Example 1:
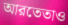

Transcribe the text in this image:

আরতেতাও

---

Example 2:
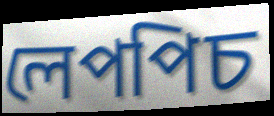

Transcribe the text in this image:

লেপপিচ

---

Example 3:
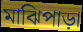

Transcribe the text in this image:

মাঝিপাড়া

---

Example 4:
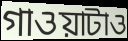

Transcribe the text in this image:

গাওয়াটাও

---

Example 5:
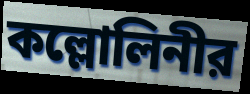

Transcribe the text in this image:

কল্লোলিনীর